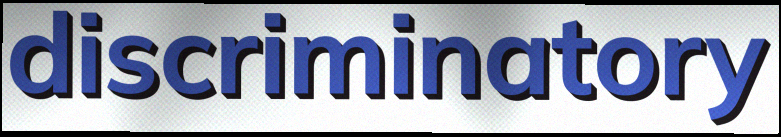
discriminatory